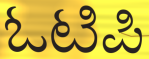
ಓಟಿಪಿ